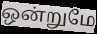
ஒன்றுமே